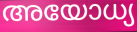
അയോധ്യ